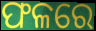
ଫଳରେ